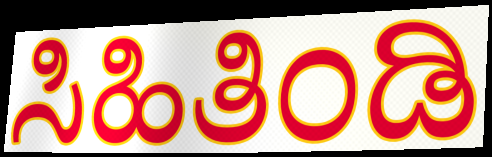
ಸಿಹಿತಿಂಡಿ